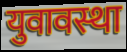
युवावस्था